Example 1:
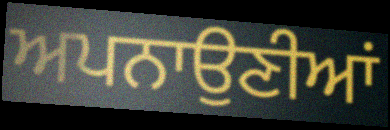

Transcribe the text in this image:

ਅਪਨਾਉਣੀਆਂ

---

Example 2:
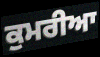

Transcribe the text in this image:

ਕੁਮਰੀਆ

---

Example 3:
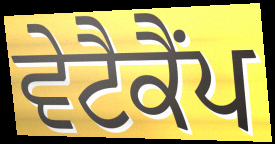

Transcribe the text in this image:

ਵੇਟੈਕੈਂਪ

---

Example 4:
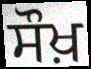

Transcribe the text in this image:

ਸੌਖ਼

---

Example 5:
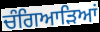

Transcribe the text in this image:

ਚੰਗਿਆੜਿਆਂ